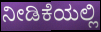
ನೀಡಿಕೆಯಲ್ಲಿ